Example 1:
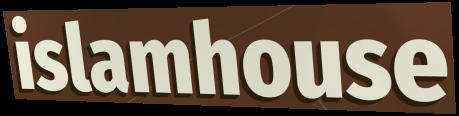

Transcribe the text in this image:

islamhouse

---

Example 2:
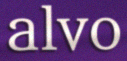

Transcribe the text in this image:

alvo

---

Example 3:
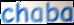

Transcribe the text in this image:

chaba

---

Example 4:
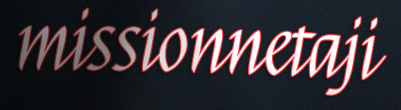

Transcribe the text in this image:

missionnetaji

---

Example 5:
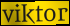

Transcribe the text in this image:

viktor